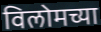
विलोमच्या